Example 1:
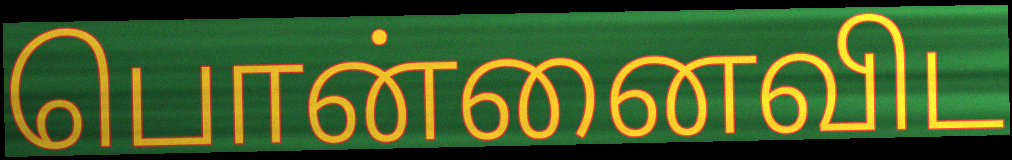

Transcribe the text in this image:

பொன்னைவிட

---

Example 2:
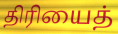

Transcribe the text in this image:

திரியைத்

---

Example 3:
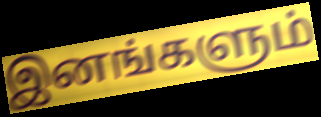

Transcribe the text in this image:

இனங்களும்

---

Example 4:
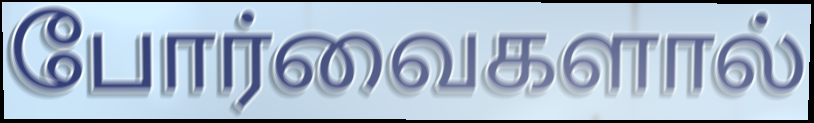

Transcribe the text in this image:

போர்வைகளால்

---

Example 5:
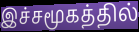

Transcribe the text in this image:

இச்சமூகத்தில்